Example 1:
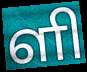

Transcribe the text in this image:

ளி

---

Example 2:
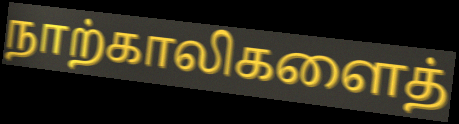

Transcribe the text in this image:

நாற்காலிகளைத்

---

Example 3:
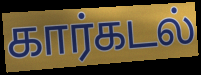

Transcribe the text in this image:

கார்கடல்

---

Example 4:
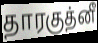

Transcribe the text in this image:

தாரகுத்னீ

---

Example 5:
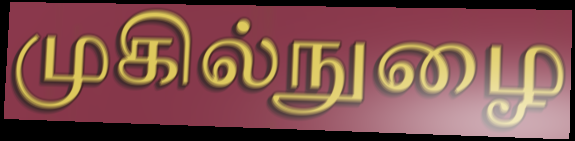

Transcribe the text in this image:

முகில்நுழை